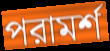
পরামর্শ